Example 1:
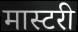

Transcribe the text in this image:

मास्टरी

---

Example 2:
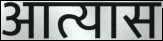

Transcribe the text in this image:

आत्यास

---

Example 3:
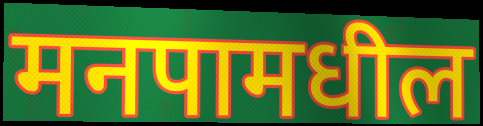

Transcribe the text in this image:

मनपामधील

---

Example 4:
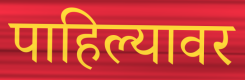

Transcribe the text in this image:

पाहिल्‍यावर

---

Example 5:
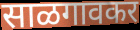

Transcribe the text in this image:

साळगावकर